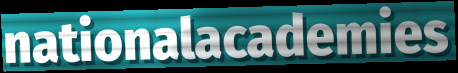
nationalacademies